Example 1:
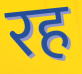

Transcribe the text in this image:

रह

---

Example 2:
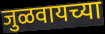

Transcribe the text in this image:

जुळवायच्या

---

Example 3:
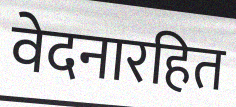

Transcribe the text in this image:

वेदनारहित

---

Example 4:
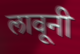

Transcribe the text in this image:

लावूनी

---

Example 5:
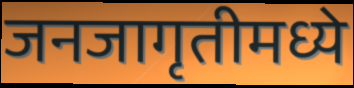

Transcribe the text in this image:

जनजागृतीमध्ये